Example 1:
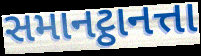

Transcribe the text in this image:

સમાનટ્ઠાનત્તા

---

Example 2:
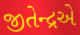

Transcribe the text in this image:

જીતેન્દ્રએ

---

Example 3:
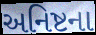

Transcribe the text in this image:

અનિષ્ટના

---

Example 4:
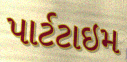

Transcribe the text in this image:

પાર્ટટાઇમ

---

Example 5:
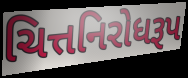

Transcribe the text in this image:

ચિત્તનિરોધરૂપ